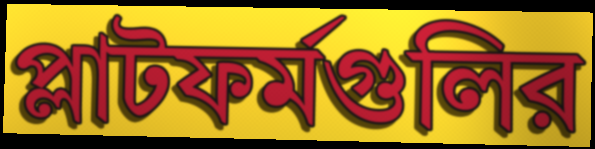
প্লাটফর্মগুলির